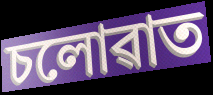
চলোৱাত